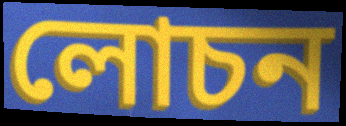
লোচন